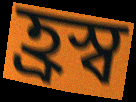
হ্ৰস্ব